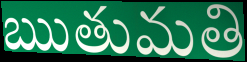
ఋతుమతి